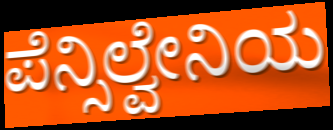
ಪೆನ್ಸಿಲ್ವೇನಿಯ